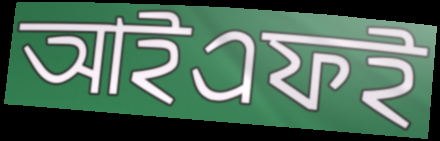
আইএফই